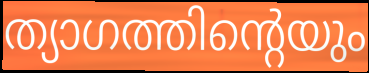
ത്യാഗത്തിന്റെയും